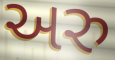
અરુ